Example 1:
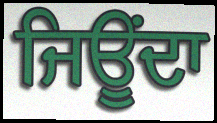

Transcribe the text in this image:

ਜਿਊੂਂਦਾ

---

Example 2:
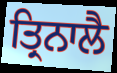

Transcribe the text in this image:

ਤ੍ਰਿਨਾਲੈ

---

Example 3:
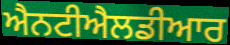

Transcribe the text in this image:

ਐਨਟੀਐਲਡੀਆਰ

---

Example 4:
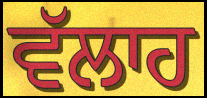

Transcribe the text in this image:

ਵੱਲਾਹ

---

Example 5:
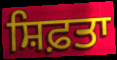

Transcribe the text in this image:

ਸ਼ਿਫ਼ਤਾ